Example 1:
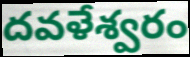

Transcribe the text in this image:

దవళేశ్వరం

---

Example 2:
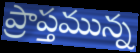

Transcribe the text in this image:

ప్రాప్తమున్న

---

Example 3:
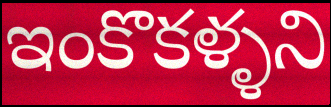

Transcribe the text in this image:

ఇంకొకళ్ళని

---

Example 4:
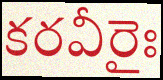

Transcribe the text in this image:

కరవీరైః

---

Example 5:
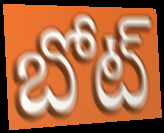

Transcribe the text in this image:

బోట్